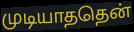
முடியாததென்